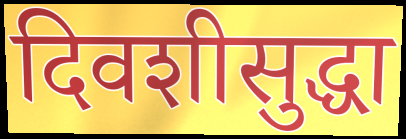
दिवशीसुद्धा